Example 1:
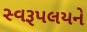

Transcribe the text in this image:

સ્વરૂપલયને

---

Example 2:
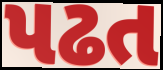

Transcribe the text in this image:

પઢત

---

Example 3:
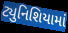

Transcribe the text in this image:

ટ્યુનિશિયામાં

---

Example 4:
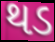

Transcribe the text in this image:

થડ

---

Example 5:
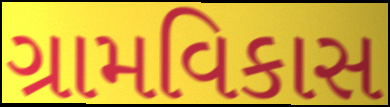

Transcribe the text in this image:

ગ્રામવિકાસ